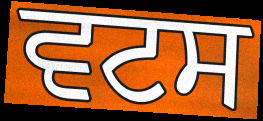
ਵਟਸ